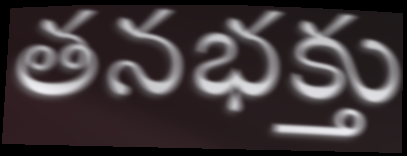
తనభక్తు